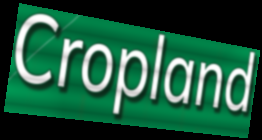
Cropland